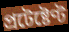
প্ৰটেষ্টেণ্ট